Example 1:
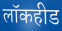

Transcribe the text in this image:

लॉकहीड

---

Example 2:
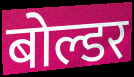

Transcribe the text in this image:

बोल्डर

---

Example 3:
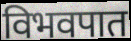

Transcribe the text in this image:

विभवपात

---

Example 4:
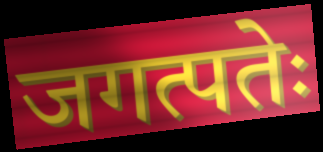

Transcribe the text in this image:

जगत्पतेः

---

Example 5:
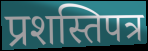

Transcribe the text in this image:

प्रशस्तिपत्र